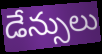
డేన్సులు